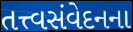
તત્ત્વસંવેદનના